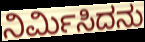
ನಿರ್ಮಿಸಿದನು